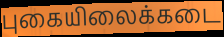
புகையிலைக்கடை